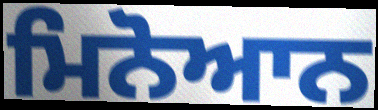
ਮਿਨੋਆਨ